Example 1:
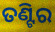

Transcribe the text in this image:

ତଣ୍ଟିର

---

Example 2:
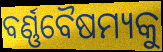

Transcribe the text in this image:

ବର୍ଣ୍ଣବୈଷମ୍ୟକୁ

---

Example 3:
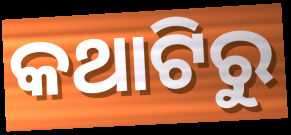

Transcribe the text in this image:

କଥାଟିରୁ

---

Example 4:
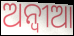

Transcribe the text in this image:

ଅନ୍ବୀଆ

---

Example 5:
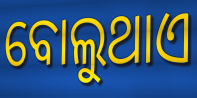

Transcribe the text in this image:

ବୋଲୁଥାଏ